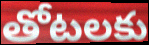
తోటలకు